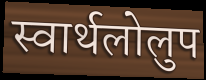
स्वार्थलोलुप